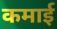
कमाई